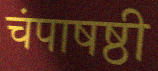
चंपाषष्ठी